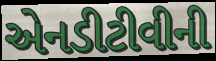
એનડીટીવીની